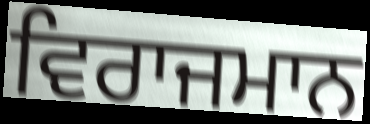
ਵਿਰਾਜਮਾਨ